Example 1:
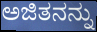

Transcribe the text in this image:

ಅಜಿತನನ್ನು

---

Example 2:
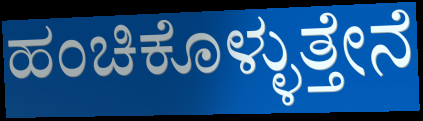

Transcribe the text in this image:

ಹಂಚಿಕೊಳ್ಳುತ್ತೇನೆ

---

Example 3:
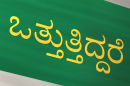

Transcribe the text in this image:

ಒತ್ತುತ್ತಿದ್ದರೆ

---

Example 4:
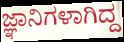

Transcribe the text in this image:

ಜ್ಞಾನಿಗಳಾಗಿದ್ದ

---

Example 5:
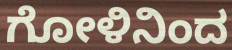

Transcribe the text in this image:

ಗೋಳಿನಿಂದ